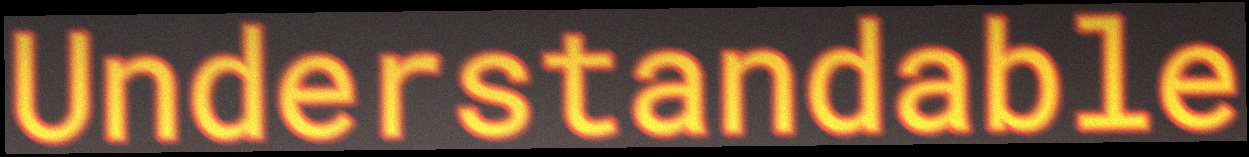
Understandable